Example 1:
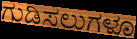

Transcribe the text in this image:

ಗುಡಿಸಲುಗಳೂ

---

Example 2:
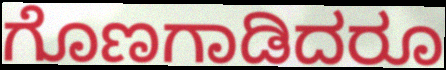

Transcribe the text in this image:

ಗೊಣಗಾಡಿದರೂ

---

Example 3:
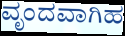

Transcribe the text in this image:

ವೃಂದವಾಗಿಹ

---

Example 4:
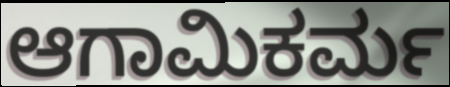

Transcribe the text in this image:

ಆಗಾಮಿಕರ್ಮ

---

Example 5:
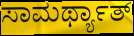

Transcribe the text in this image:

ಸಾಮರ್ಥ್ಯಾತ್